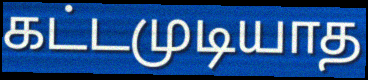
கட்டமுடியாத